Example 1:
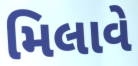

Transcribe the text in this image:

મિલાવે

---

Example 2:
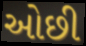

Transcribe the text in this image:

ઓછી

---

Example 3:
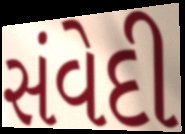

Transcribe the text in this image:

સંવેદી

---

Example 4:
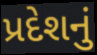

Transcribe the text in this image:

પ્રદેશનું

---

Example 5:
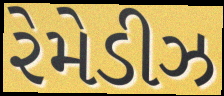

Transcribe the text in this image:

રેમેડીઝ